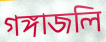
গঙ্গাজলি